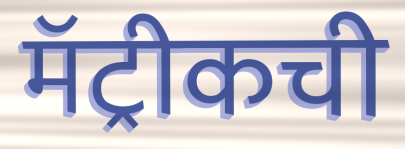
मॅट्रीकची